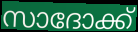
സാദോക്ക്